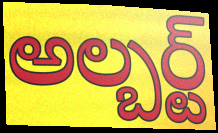
అల్బర్ట్